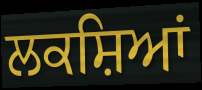
ਲਕਸ਼ਿਆਂ